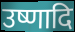
उष्णादि